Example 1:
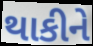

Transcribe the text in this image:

થાકીને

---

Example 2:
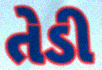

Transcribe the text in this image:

તેડી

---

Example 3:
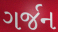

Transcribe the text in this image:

ગર્જન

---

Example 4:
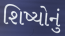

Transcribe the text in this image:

શિષ્યોનું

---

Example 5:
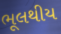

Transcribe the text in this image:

ભૂલથીય